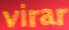
virar